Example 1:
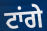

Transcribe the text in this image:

ਟਾਂਗੇ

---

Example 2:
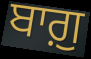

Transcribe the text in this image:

ਬਾਗ਼ੁ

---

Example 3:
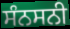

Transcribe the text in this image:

ਸੰਨਸਨੀ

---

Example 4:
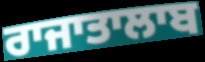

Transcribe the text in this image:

ਰਾਜਾਤਾਲਾਬ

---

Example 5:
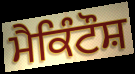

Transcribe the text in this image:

ਮੈਕਿੰਟੌਸ਼